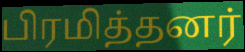
பிரமித்தனர்